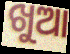
ଖୁଆ